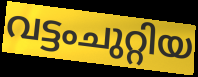
വട്ടംചുറ്റിയ